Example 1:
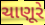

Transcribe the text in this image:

ચાણૂરે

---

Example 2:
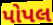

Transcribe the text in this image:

પોપલ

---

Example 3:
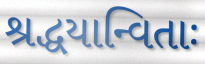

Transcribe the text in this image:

શ્રદ્ધયાન્વિતાઃ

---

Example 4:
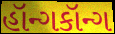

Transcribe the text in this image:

હૉન્ગકૉન્ગ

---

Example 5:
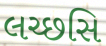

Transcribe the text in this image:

લચ્છસિ